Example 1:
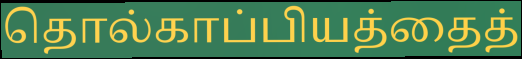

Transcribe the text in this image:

தொல்காப்பியத்தைத்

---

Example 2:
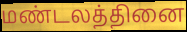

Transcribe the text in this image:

மண்டலத்தினை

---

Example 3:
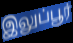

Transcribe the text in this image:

இலுப்பூர்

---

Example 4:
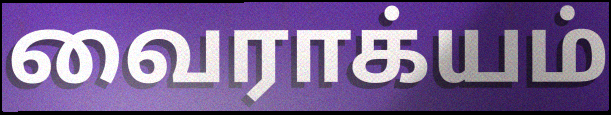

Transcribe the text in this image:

வைராக்யம்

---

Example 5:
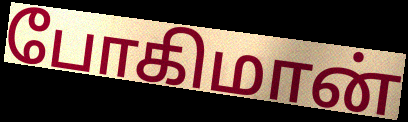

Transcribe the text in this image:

போகிமான்